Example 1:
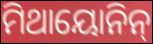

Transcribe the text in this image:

ମିଥାୟୋନିନ୍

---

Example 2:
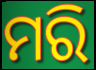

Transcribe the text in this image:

ମରି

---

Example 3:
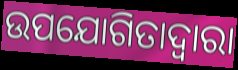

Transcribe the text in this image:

ଉପଯୋଗିତାଦ୍ୱାରା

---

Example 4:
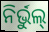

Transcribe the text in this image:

ନିର୍ଭୁଲ୍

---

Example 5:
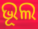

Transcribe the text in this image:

ଭୂଲ